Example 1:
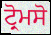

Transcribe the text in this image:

ਟ੍ਰੋਮਸੋ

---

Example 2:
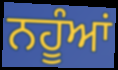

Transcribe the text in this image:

ਨਹੂੰਆਂ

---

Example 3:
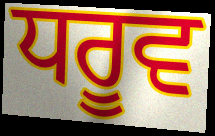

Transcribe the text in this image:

ਧਰੂਵ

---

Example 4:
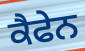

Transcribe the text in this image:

ਕੈਫੇਨ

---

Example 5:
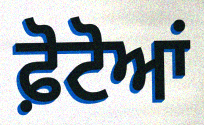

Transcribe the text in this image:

ਫ਼ੋਟੋਆਂ